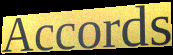
Accords